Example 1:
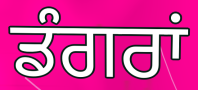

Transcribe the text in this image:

ਡੰਗਰਾਂ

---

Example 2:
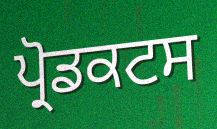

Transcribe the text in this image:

ਪ੍ਰੋਡਕਟਸ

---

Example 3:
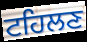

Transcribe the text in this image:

ਟਹਿਲਣ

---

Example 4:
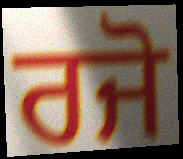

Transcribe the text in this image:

ਰਜੋ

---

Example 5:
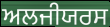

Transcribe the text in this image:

ਅਲਜੀਯਰਸ